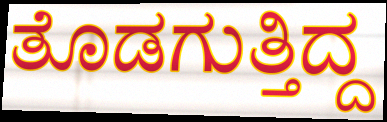
ತೊಡಗುತ್ತಿದ್ದ